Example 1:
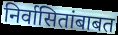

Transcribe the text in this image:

निर्वासितांबाबत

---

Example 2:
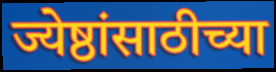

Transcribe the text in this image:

ज्येष्ठांसाठीच्या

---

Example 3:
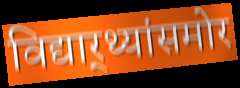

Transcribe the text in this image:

विद्यार्थ्यांसमोर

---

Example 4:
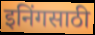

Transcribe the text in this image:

इनिंगसाठी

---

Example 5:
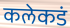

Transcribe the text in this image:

कलेकडं